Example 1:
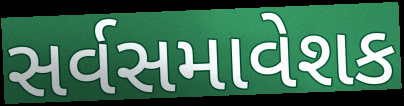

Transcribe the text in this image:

સર્વસમાવેશક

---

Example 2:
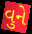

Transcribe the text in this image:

વુને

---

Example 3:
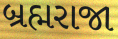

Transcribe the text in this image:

બ્રહ્મરાજા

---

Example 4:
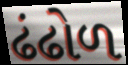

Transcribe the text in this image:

ઢંઢોળ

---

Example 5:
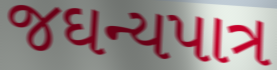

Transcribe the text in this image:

જઘન્યપાત્ર